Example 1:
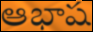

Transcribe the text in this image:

ఆభాష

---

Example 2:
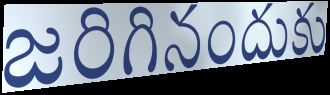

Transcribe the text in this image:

జరిగినందుకు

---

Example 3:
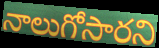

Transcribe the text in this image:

నాలుగోసారని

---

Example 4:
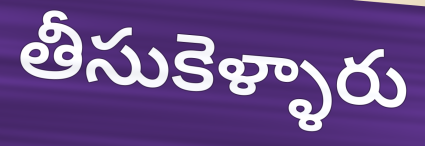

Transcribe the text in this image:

తీసుకెళ్ళారు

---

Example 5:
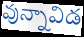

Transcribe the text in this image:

వున్నావిడ